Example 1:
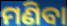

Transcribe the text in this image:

ମଣିବା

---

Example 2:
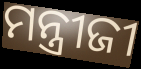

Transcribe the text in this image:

ମନ୍ତ୍ରୀଜୀ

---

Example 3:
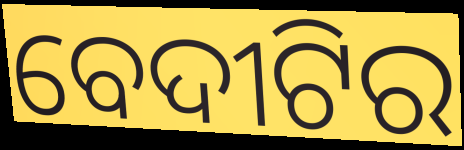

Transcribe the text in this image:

ବେଦୀଟିର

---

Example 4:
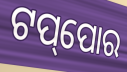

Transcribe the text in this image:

ଟପ୍‌ପୋର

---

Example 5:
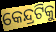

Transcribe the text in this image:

କେନ୍ଦ୍ରଟିକୁ